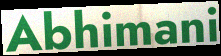
Abhimani